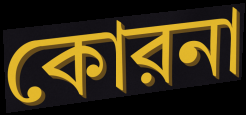
কোরনা